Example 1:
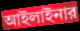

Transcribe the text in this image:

আইলাইনার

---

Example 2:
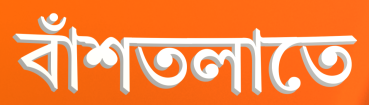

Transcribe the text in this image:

বাঁশতলাতে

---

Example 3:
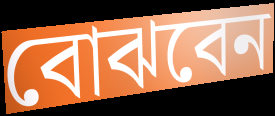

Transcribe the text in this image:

বোঝবেন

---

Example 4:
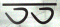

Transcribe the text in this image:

তত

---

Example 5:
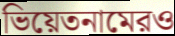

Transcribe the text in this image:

ভিয়েতনামেরও